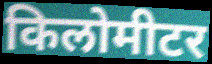
किलोमीटर